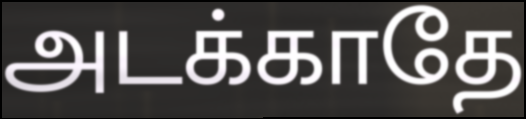
அடக்காதே